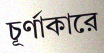
চূর্ণাকারে